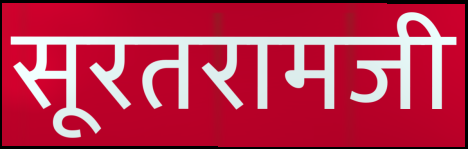
सूरतरामजी